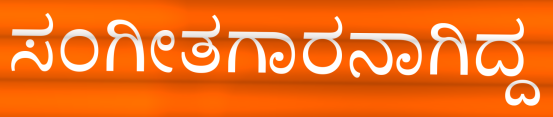
ಸಂಗೀತಗಾರನಾಗಿದ್ದ